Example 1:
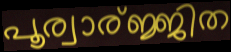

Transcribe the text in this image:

പൂര്വാര്ജ്ജിത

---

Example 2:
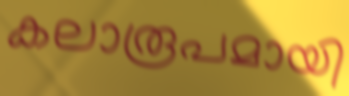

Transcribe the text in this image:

കലാരൂപമായി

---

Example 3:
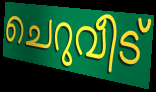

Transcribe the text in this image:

ചെറുവീട്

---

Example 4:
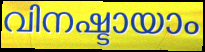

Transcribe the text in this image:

വിനഷ്ടായാം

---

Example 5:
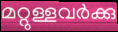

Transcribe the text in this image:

മറ്റുള്ളവർക്കു